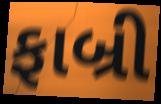
ફાબ્રી